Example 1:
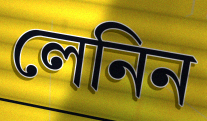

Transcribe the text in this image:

লেনিন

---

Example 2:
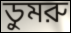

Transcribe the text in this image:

ডুমরু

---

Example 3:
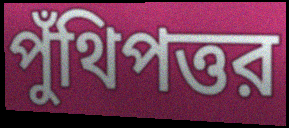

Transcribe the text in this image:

পুঁথিপত্তর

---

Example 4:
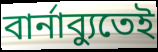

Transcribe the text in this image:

বার্নাব্যুতেই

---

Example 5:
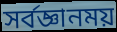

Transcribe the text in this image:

সর্বজ্ঞানময়